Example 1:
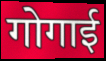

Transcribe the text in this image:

गोगाई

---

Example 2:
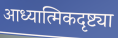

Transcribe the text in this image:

आध्यात्मिकदृष्ट्या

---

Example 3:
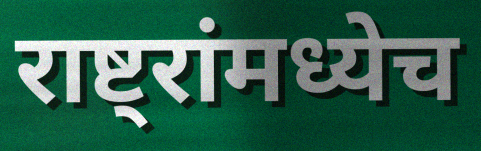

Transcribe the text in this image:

राष्ट्रांमध्येच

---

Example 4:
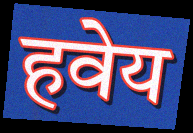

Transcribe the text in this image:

हवेय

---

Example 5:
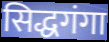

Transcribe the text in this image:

सिद्धगंगा